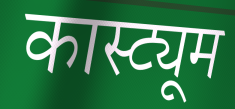
कास्ट्यूम